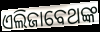
ଏଲିଜାବେଥଙ୍କ